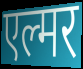
एल्मर